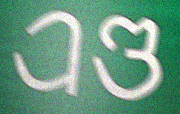
এণ্ড